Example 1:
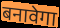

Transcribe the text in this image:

बनावेगा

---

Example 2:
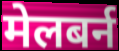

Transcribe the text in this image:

मेलबर्न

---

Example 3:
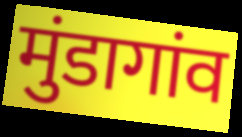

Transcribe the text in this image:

मुंडागांव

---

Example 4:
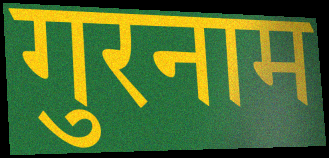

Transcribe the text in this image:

गुरनाम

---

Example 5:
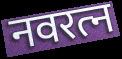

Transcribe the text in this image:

नवरत्‍न